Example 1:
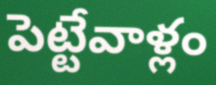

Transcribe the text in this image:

పెట్టేవాళ్లం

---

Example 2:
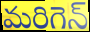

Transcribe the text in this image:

మరిగెన్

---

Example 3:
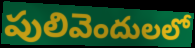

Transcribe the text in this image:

పులివెందులలో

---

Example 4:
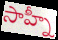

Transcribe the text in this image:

సాహ్నీ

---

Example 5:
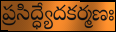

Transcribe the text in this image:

ప్రసిద్ధ్యేదకర్మణః